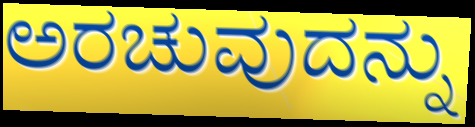
ಅರಚುವುದನ್ನು